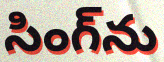
సింగ్‌ను